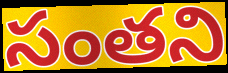
సంతని